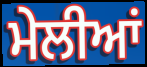
ਮੇਲੀਆਂ